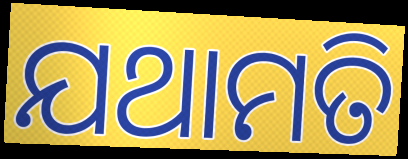
ଯଥାମତି